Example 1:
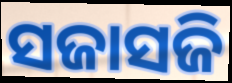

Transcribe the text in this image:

ସଜାସଜି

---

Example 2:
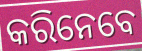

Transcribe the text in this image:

କରିନେବେ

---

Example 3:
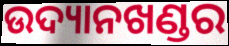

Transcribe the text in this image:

ଉଦ୍ୟାନଖଣ୍ଡର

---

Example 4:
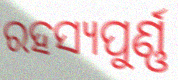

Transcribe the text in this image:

ରହସ୍ୟପୁର୍ଣ୍ଣ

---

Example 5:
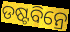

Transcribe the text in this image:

ଡଷ୍ଟବିନ୍ରେ